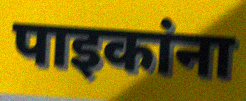
पाइकांना